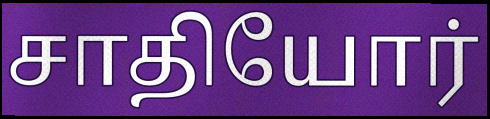
சாதியோர்